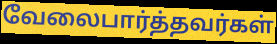
வேலைபார்த்தவர்கள்